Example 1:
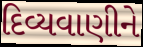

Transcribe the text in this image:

દિવ્યવાણીને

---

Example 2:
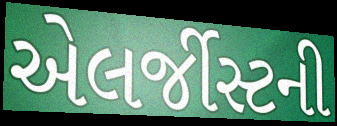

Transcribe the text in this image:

એલર્જીસ્ટની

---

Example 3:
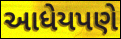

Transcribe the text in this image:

આધેયપણે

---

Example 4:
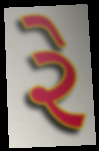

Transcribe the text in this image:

રે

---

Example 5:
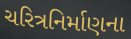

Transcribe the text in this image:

ચરિત્રનિર્માણના